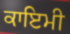
ਕਾਇਮੀ